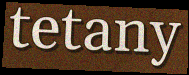
tetany